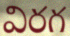
విరగ